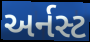
અર્નસ્ટ